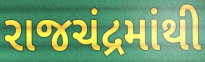
રાજચંદ્રમાંથી